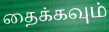
தைக்கவும்